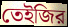
তেইজির